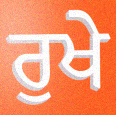
ਰੁਖੇ